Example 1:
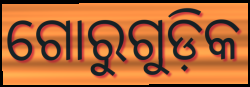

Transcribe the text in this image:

ଗୋରୁଗୁଡ଼ିକ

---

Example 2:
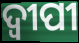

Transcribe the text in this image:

ଦ୍ୱୀପୀ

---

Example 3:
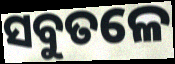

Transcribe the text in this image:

ସବୁତଳେ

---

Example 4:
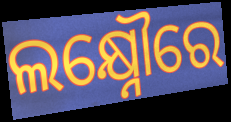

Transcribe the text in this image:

ଲକ୍ଷ୍ନୌରେ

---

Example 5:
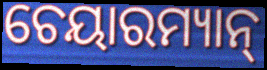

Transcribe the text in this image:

ଚେୟାରମ୍ୟାନ୍